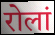
रोलां